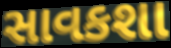
સાવકશા